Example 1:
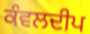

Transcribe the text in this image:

ਕੰਵਲਦੀਪ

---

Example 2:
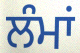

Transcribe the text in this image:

ਲੰਮਾਂ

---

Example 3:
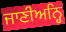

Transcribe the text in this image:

ਜਾਣੀਅਨ੍ਹਿ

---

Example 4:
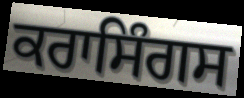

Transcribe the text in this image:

ਕਰਾਸਿੰਗਸ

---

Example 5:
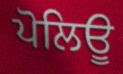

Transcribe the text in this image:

ਪੋਲਿਊ